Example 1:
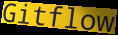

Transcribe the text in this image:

Gitflow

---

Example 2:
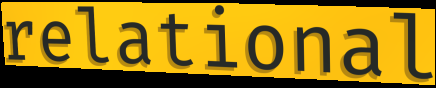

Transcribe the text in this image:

relational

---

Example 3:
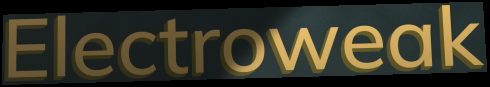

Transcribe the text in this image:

Electroweak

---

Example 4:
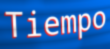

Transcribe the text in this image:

Tiempo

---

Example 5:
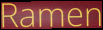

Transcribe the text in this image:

Ramen